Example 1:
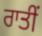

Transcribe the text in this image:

ਰਾਤੀਂ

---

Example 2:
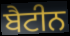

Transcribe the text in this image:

ਬੈਟੀਨ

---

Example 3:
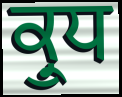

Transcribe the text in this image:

ਕ੍ਰੁਧ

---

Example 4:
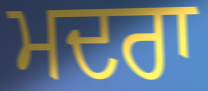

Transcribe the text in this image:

ਮਦਰਾ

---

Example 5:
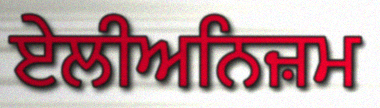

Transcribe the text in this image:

ਏਲੀਅਨਿਜ਼ਮ